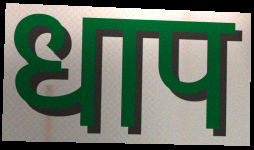
धाप